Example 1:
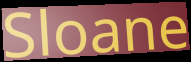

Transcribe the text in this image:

Sloane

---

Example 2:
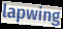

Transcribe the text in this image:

lapwing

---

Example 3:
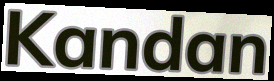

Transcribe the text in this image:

Kandan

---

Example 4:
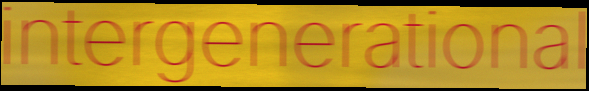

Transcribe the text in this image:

intergenerational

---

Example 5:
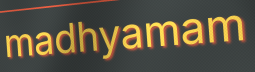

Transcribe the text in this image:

madhyamam